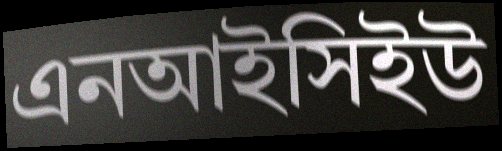
এনআইসিইউ